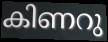
കിണറു